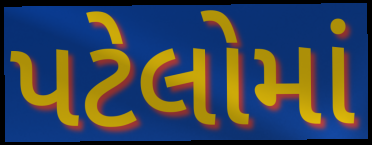
પટેલોમાં